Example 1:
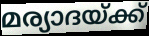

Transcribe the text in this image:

മര്യാദയ്ക്ക്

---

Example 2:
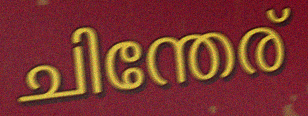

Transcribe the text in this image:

ചിന്തേര്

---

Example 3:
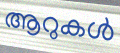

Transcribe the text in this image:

ആറുകൾ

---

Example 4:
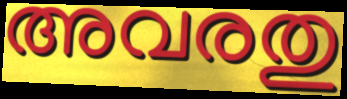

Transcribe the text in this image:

അവരതു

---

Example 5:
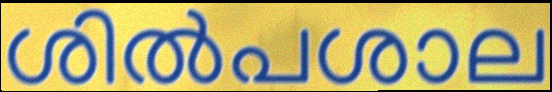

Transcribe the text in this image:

ശിൽപശാല